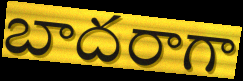
బాదరాగా